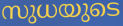
സുധയുടെ